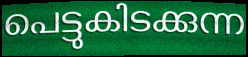
പെട്ടുകിടക്കുന്ന